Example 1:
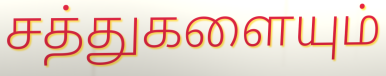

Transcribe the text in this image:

சத்துகளையும்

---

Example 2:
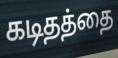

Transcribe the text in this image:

கடிதத்தை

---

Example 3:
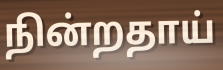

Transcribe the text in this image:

நின்றதாய்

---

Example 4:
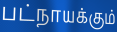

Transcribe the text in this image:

பட்நாயக்கும்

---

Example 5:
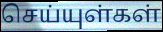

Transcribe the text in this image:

செய்யுள்கள்